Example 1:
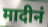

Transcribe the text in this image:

मादीनं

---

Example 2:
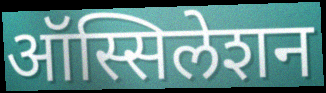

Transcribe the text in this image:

ऑस्सिलेशन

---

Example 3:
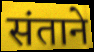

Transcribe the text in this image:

संताने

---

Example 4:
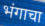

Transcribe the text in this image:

भंगाचा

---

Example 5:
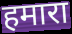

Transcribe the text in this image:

हमारा